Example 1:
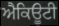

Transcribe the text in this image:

ਐਕਿਊਟੀ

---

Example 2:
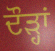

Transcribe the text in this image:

ਦੌੜ੍ਹਾਂ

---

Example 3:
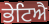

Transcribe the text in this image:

ਭੇਟਿਐ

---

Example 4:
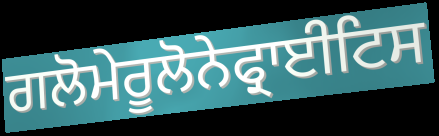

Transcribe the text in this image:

ਗਲੋਮੇਰੂਲੋਨੇਫ੍ਰਾਈਟਿਸ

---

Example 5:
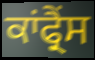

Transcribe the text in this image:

ਕਾਂਫ੍ਰੈਂਸ